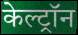
केल्ट्रॉन